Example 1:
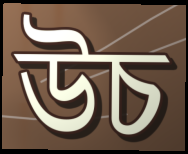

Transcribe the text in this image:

উচ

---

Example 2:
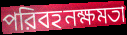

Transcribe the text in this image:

পরিবহনক্ষমতা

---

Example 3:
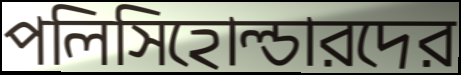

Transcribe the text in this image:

পলিসিহোল্ডারদের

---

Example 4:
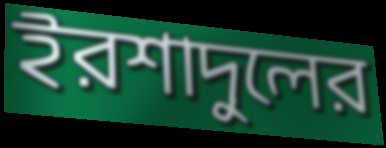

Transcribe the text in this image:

ইরশাদুলের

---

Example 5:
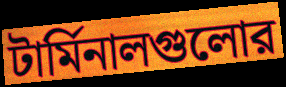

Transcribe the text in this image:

টার্মিনালগুলোর